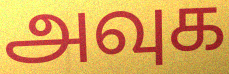
அவுக